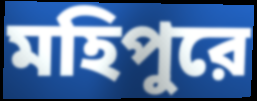
মহিপুরে